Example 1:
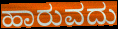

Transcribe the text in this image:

ಹಾರುವದು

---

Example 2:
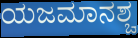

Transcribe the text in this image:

ಯಜಮಾನಶ್ಚ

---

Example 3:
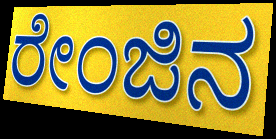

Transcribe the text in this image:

ರೇಂಜಿನ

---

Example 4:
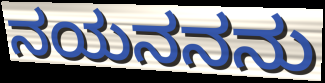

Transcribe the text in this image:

ನಯನನನು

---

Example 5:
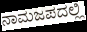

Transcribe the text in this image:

ನಾಮಜಪದಲ್ಲಿ